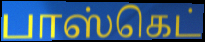
பாஸ்கெட்